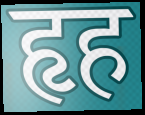
हृह